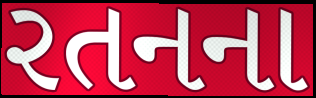
રતનના